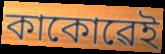
কাকোৱেই